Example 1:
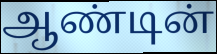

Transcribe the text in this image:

ஆண்டின்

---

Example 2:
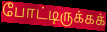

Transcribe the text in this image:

போட்டிருக்கக்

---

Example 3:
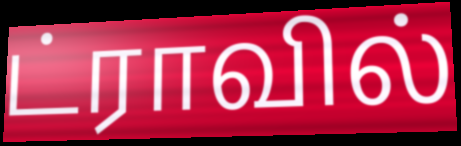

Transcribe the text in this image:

ட்ராவில்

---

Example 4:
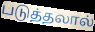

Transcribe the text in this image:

படுத்தலால்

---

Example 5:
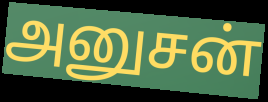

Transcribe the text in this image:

அனுசன்